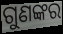
ଗୁଣଙ୍କର